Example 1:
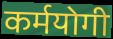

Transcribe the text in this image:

कर्मयोगी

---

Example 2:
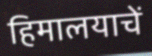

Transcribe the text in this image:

हिमालयाचें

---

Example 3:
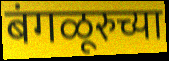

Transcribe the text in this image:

बंगळूरुच्या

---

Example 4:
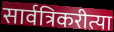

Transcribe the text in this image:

सार्वत्रिकरीत्या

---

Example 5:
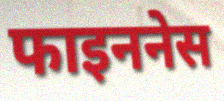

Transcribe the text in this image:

फाइननेस